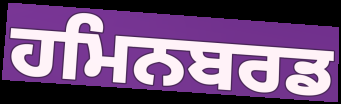
ਹਮਿਨਬਰਡ